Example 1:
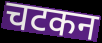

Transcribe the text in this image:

चटकन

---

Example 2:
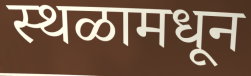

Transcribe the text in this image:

स्थळामधून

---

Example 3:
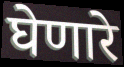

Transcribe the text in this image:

घेणारे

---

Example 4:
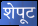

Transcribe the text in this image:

शेपूट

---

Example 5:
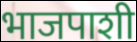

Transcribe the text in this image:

भाजपाशी